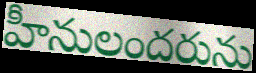
హీనులందరును